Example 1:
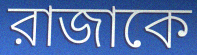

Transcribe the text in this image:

রাজাকে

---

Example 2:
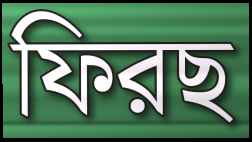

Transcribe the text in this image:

ফিরছ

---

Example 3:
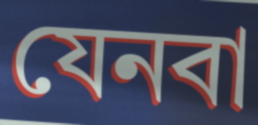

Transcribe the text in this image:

যেনবা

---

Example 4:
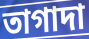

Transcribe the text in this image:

তাগাদা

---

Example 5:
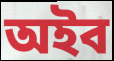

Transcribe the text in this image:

অইব